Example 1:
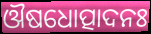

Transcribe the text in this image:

ଔଷଧୋତ୍ପାଦନଃ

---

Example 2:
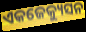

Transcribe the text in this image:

ଏକଜେକ୍ୟୁସନ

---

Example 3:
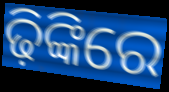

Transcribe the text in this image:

ଢ଼ିଙ୍କିରେ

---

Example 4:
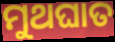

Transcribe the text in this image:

ମୁଥଘାତ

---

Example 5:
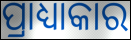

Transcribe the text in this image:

ପ୍ରାଧ୍ୟାକାର